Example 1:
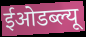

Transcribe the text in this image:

ईओडब्ल्यू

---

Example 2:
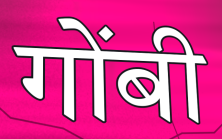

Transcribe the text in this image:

गोंबी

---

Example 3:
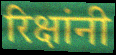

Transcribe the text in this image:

रिक्षांनी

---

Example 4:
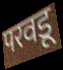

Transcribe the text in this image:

परवडू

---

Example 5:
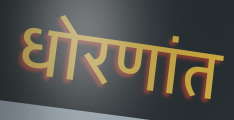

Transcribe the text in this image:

धोरणांत